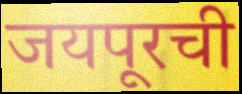
जयपूरची